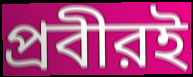
প্রবীরই